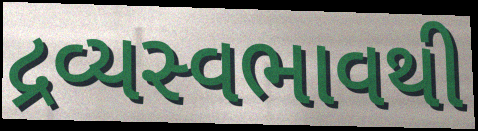
દ્રવ્યસ્વભાવથી